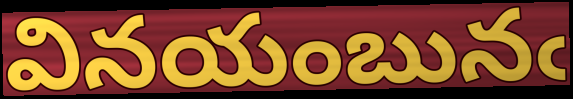
వినయంబునఁ